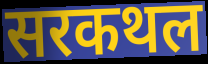
सरकथल